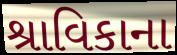
શ્રાવિકાના